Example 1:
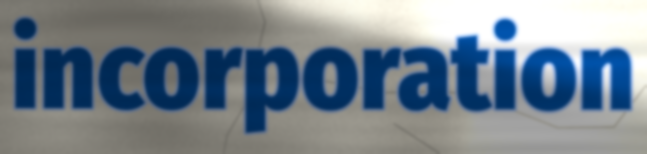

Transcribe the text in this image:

incorporation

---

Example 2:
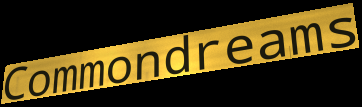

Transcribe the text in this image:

Commondreams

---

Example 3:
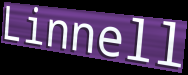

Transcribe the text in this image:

Linnell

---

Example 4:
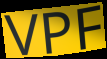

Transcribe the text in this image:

VPF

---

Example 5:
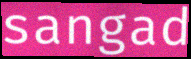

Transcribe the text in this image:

sangad